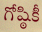
గోష్ఠికీ